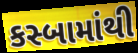
કસ્બામાંથી